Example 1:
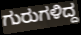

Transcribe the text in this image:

ಗುರುಗಳಿದ್ದ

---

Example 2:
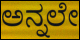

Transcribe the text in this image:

ಅನ್ನಲೇ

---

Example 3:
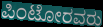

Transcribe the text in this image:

ಪಿಂಟೋರವರು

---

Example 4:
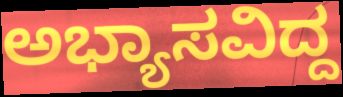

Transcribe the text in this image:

ಅಭ್ಯಾಸವಿದ್ದ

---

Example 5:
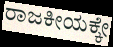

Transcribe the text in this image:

ರಾಜಕೀಯಕ್ಕೇ